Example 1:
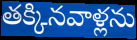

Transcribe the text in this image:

తక్కినవాళ్లను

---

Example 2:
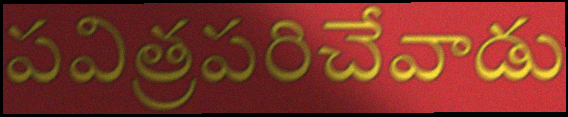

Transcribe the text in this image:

పవిత్రపరిచేవాడు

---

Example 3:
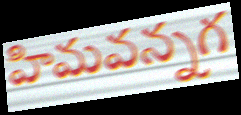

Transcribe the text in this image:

హిమవన్నగ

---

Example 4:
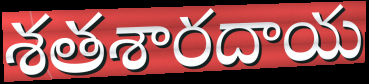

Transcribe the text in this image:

శతశారదాయ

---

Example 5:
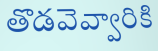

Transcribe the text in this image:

తొడవెవ్వారికి